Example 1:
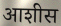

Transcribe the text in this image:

आशीस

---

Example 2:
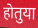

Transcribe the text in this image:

होतुया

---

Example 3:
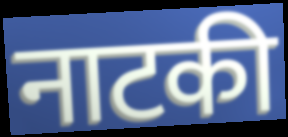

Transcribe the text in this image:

नाटकी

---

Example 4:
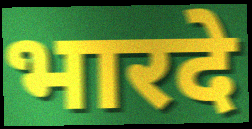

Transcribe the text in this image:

भारदे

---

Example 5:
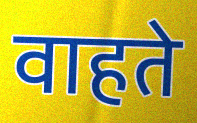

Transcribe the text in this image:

वाहते